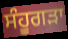
ਸੰਹੂਗੜਾ